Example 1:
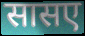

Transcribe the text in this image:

सासए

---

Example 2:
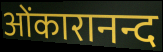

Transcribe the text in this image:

ओंकारानन्द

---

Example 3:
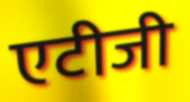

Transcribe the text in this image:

एटीजी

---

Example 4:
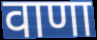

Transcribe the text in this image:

वाणा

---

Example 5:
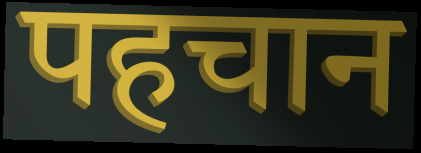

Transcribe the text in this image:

पहचान